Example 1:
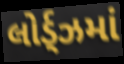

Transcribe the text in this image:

લોર્ડ્ઝમાં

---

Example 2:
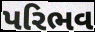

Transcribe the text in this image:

પરિભવ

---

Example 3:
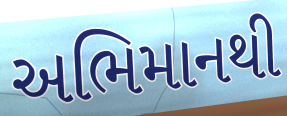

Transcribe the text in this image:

અભિમાનથી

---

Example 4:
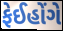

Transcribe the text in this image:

ફેઈહોંગે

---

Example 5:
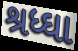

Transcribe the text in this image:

શ્રધ્ઘા